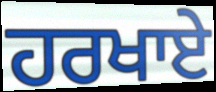
ਹਰਖਾਏ